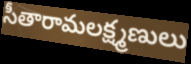
సీతారామలక్ష్మణులు